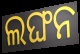
ଲଙ୍ଘନ